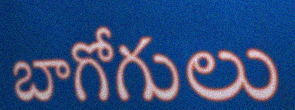
బాగోగులు